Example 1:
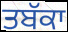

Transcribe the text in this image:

ਤਬੱਕਾ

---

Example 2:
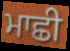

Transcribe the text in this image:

ਮਾਛੀ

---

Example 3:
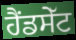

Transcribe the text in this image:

ਹੈਂਡਸੇੱਟ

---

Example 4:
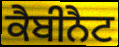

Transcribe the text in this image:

ਕੈਬੀਨੈਟ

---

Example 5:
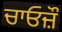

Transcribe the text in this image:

ਚਾਓਜ਼ੌ